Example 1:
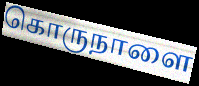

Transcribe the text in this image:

கொருநாளை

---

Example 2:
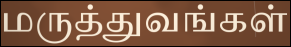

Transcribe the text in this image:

மருத்துவங்கள்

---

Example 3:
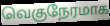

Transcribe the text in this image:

வெகுநேரமாக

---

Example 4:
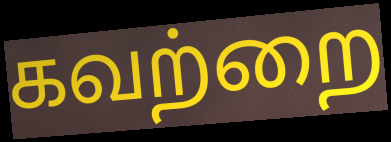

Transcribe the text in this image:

கவற்றை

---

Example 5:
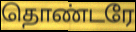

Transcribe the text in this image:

தொண்டரே